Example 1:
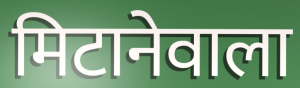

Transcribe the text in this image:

मिटानेवाला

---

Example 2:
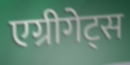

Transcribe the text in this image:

एग्रीगेट्स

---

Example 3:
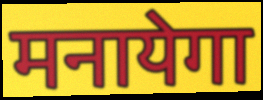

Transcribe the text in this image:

मनायेगा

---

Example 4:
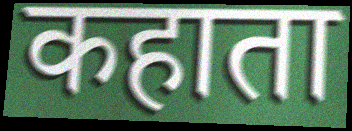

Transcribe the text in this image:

कहाता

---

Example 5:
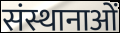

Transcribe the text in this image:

संस्थानाओं